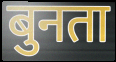
बुनता